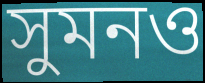
সুমনও